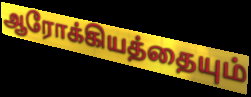
ஆரோக்கியத்தையும்